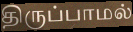
திருப்பாமல்